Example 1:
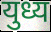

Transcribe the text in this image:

युध्य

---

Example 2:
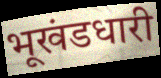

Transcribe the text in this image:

भूखंडधारी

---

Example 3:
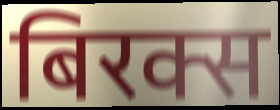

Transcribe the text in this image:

बिरक्स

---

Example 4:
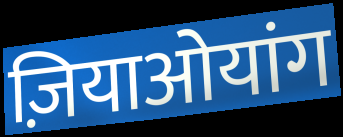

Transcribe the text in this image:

ज़ियाओयांग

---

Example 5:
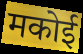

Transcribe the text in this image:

मकोई